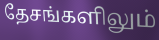
தேசங்களிலும்